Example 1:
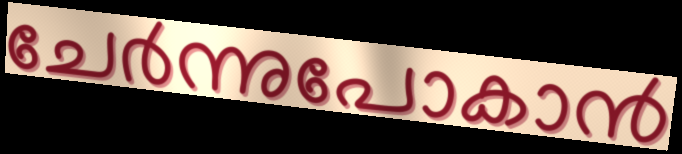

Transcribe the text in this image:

ചേർന്നുപോകാൻ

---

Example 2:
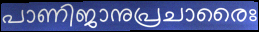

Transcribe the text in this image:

പാണിജാനുപ്രചാരൈഃ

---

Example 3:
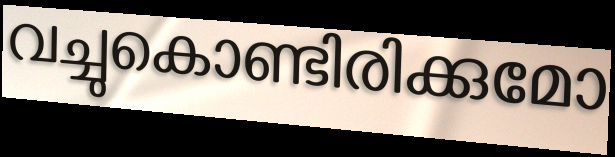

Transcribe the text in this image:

വച്ചുകൊണ്ടിരിക്കുമോ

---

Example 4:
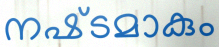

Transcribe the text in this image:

നഷ്‌ടമാകും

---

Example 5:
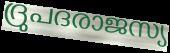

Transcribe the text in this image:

ദ്രുപദരാജസ്യ